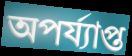
অপৰ্য্যাপ্ত